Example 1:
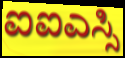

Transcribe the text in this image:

ಐಐಎಸ್ಸಿ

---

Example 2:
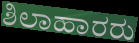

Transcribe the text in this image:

ಶಿಲಾಹಾರರು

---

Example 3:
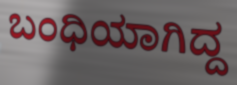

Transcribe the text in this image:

ಬಂಧಿಯಾಗಿದ್ದ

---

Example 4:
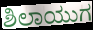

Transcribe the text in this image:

ಶಿಲಾಯುಗ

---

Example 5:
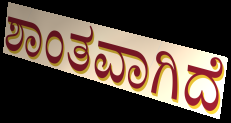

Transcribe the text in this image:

ಶಾಂತವಾಗಿದೆ